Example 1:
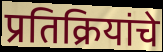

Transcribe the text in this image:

प्रतिक्रियांचे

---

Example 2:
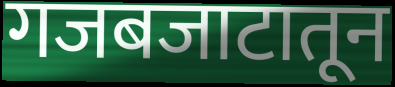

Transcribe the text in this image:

गजबजाटातून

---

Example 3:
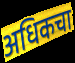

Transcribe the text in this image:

अधिकचा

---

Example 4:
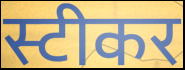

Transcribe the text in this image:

स्टीकर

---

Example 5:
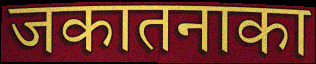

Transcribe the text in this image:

जकातनाका